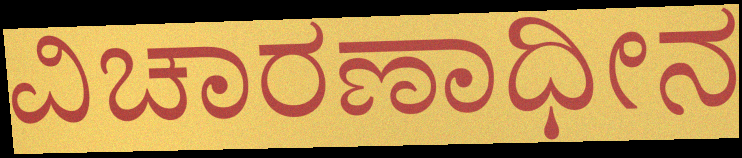
ವಿಚಾರಣಾಧೀನ